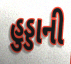
હુડ્ડાની